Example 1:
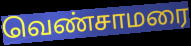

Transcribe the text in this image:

வெண்சாமரை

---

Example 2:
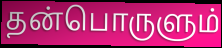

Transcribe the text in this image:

தன்பொருளும்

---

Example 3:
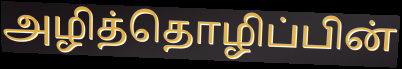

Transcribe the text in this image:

அழித்தொழிப்பின்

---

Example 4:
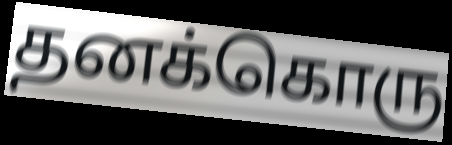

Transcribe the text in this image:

தனக்கொரு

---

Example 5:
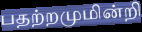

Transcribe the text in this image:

பதற்றமுமின்றி